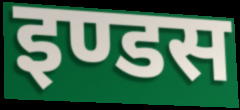
इण्डस